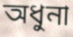
অধুনা